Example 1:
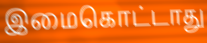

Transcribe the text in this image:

இமைகொட்டாது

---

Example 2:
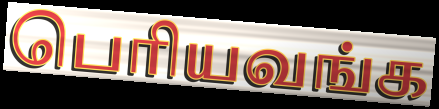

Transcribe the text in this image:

பெரியவங்க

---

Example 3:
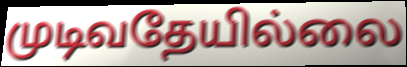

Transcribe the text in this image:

முடிவதேயில்லை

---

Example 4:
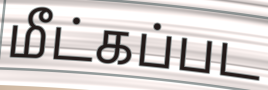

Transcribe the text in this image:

மீட்கப்பட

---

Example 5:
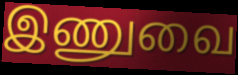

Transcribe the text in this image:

இணுவை